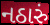
નઠારું